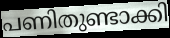
പണിതുണ്ടാക്കി